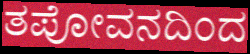
ತಪೋವನದಿಂದ